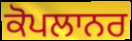
ਕੋਪਲਾਨਰ